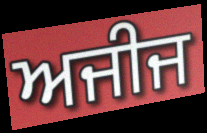
ਅਜੀਜ